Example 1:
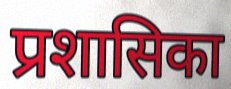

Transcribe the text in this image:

प्रशासिका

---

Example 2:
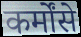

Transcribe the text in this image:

कर्मोंसे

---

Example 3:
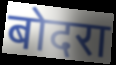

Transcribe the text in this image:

बोदरा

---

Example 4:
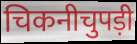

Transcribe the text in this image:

चिकनीचुपड़ी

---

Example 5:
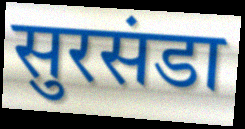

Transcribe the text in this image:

सुरसंडा